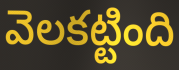
వెలకట్టింది